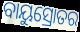
ବାୟୁସ୍ରୋତର